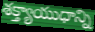
శక్త్యాయుధాన్ని